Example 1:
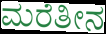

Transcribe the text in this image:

ಮರೆತೀನ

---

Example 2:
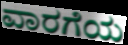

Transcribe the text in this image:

ವಾರಗೆಯ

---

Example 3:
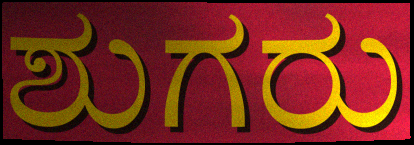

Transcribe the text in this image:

ಶುಗರು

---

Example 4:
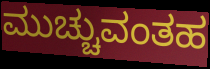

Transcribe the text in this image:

ಮುಚ್ಚುವಂತಹ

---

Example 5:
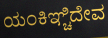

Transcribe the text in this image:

ಯಂಕಿಞ್ಚಿದೇವ